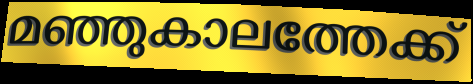
മഞ്ഞുകാലത്തേക്ക്